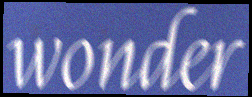
wonder